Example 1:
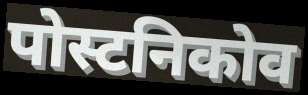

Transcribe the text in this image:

पोस्टनिकोव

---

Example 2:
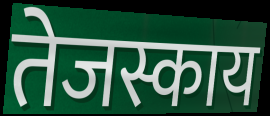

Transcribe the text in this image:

तेजस्काय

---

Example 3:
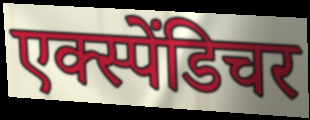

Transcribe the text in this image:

एक्स्पेंडिचर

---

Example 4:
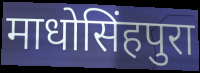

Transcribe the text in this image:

माधोसिंहपुरा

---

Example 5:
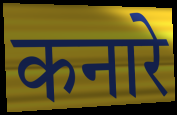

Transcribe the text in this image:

कनारे